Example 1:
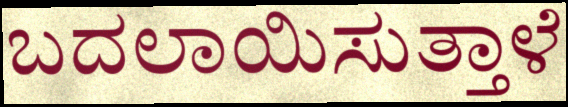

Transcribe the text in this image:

ಬದಲಾಯಿಸುತ್ತಾಳೆ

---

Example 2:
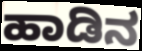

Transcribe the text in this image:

ಹಾಡಿನ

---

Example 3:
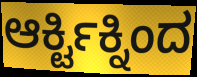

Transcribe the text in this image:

ಆರ್ಕ್ಟಿಕ್ನಿಂದ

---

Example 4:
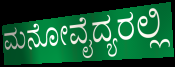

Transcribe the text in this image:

ಮನೋವೈದ್ಯರಲ್ಲಿ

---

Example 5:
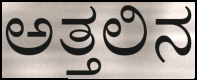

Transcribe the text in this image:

ಅತ್ತಲಿನ